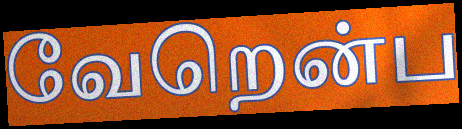
வேறென்ப